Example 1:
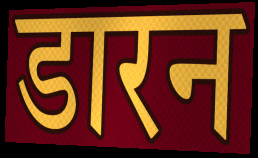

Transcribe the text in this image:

डारन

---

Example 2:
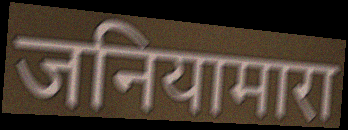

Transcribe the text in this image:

जनियामारा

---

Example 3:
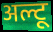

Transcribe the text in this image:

अल्टू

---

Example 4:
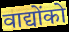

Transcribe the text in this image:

वाद्योंको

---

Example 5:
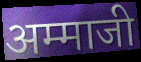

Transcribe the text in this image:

अम्माजी